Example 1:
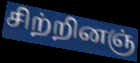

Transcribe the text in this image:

சிற்றினஞ்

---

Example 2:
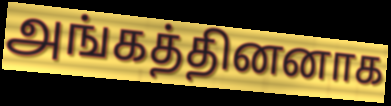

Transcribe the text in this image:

அங்கத்தினனாக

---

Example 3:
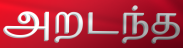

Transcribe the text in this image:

அறடந்த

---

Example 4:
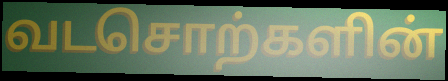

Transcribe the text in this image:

வடசொற்களின்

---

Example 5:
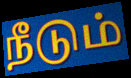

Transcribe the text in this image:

நீடும்